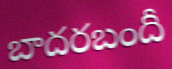
బాదరబందీ